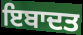
ਇਬਾਦਤ